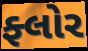
ફ્લોર